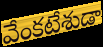
వేంకటేశుడా